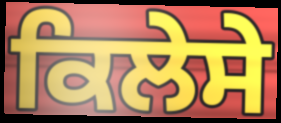
ਕਿਲੇਸੇ